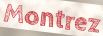
Montrez